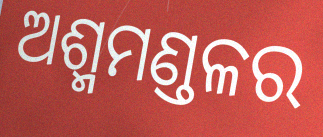
ଅଶ୍ମମଣ୍ଡଳର